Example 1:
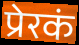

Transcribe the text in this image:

प्रेरकं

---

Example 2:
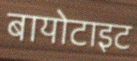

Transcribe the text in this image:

बायोटाइट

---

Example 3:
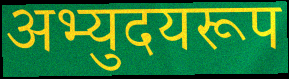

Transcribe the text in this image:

अभ्युदयरूप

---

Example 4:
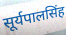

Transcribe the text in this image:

सूर्यपालसिंह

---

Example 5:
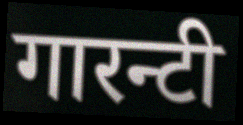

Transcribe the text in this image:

गारन्टी